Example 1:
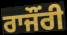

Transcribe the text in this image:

ਰਾਜੌਂਰੀ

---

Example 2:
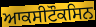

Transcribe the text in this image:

ਆਕਸੀਟੌਕਸਿਨ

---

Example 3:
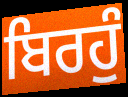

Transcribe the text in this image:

ਬਿਰਹੁੰ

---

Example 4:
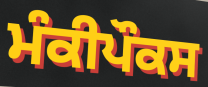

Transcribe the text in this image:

ਮੰਕੀਪੌਕਸ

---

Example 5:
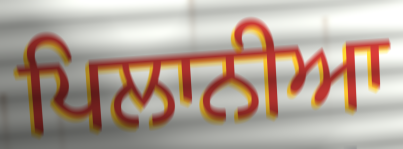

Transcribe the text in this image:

ਪਿਲਾਨੀਆ